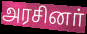
அரசினர்